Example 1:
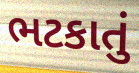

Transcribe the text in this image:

ભટકાતું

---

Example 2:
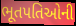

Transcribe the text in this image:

ભૂતપતિઓની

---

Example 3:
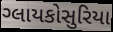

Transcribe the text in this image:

ગ્લાયકોસુરિયા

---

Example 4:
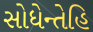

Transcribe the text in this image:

સોધેન્તેહિ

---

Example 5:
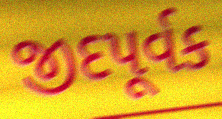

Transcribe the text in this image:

જીદપૂર્વક